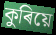
কুৰিয়ে